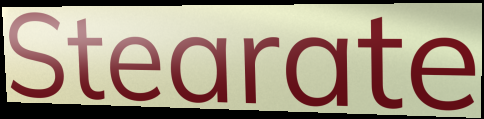
Stearate